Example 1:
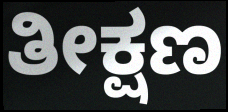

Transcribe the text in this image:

ತೀಕ್ಷಣ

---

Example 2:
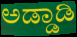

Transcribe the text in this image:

ಅಡ್ಡಾಡಿ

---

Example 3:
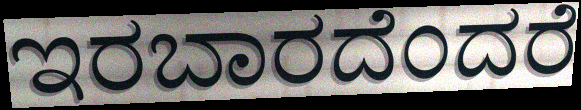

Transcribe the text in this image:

ಇರಬಾರದೆಂದರೆ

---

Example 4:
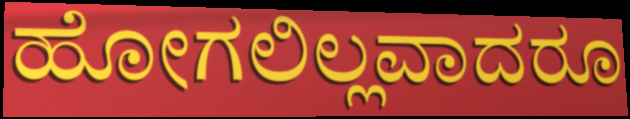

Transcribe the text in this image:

ಹೋಗಲಿಲ್ಲವಾದರೂ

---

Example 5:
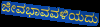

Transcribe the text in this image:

ಜೀವಭಾವವಳಿಯದು